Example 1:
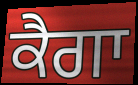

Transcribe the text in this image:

ਕੈਗਾ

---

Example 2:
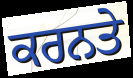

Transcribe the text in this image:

ਕਰਨਤੇ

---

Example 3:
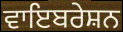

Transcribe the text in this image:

ਵਾਇਬਰੇਸ਼ਨ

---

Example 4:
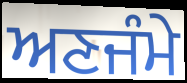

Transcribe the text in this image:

ਅਣਜੰਮੇ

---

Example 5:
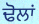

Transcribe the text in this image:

ਢੋਲਾਂ